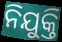
ନିଯୁକ୍ତି